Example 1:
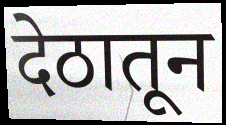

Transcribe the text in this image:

देठातून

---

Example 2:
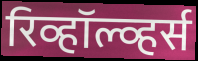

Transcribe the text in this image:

रिव्हॉल्व्हर्स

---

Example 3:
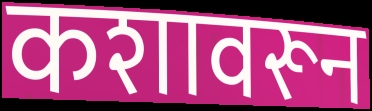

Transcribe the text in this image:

कशावरून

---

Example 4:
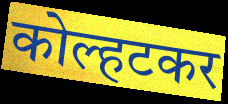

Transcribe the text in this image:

कोल्हटकर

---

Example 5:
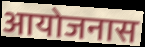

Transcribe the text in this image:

आयोजनास